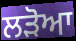
ਲੜੋਆ